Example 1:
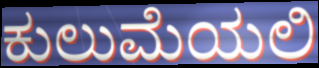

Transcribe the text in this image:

ಕುಲುಮೆಯಲಿ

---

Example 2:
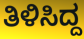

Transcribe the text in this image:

ತಿಳಿಸಿದ್ದ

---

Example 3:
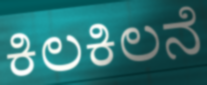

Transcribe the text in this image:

ಕಿಲಕಿಲನೆ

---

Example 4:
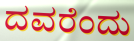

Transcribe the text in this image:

ದವರೆಂದು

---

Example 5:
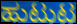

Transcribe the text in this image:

ಹುಟುಟ